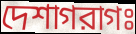
দেশাগরাগঃ